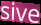
sive